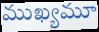
ముఖ్యమూ